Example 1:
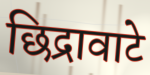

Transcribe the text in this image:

छिद्रावाटे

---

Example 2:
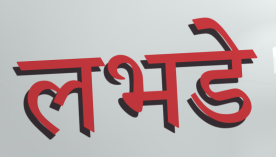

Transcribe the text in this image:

लभडे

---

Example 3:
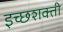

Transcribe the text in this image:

इच्छशक्ती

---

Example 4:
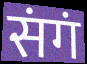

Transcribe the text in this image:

संगं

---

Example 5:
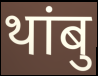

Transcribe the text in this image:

थांबु